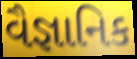
વૈજ્ઞાનિક